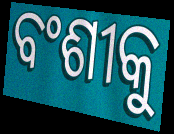
ବଂଶୀକୁ